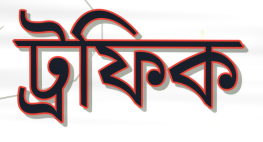
ট্রফিক